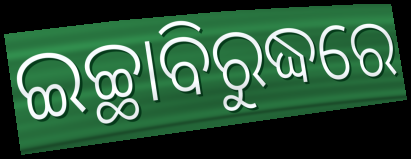
ଇଚ୍ଛାବିରୁଦ୍ଧରେ